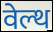
वेल्‍थ